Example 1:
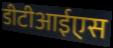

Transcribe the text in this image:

डीटीआईएस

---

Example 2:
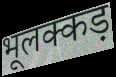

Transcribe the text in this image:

भूलक्कड़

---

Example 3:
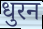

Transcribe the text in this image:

धुरन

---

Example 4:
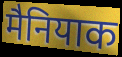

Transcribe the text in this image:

मैनियाक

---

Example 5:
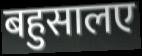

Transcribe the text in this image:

बहुसालए